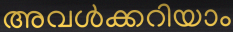
അവൾക്കറിയാം